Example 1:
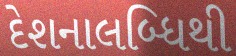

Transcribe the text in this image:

દેશનાલબ્ધિથી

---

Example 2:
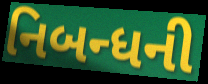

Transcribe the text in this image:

નિબન્ધની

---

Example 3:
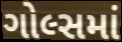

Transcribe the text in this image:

ગોલ્સમાં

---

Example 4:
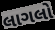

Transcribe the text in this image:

લાગલો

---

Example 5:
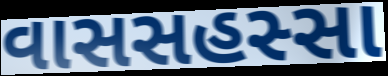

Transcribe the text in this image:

વાસસહસ્સા